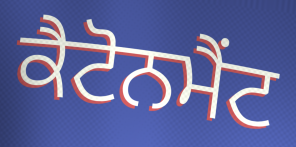
ਕੈਟੋਨਮੈਂਟ